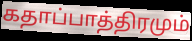
கதாப்பாத்திரமும்